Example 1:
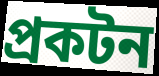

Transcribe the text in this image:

প্রকটন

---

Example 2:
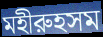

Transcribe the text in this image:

মহীরুহসম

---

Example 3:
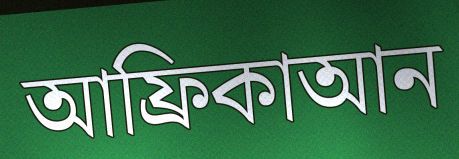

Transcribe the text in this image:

আফ্রিকাআন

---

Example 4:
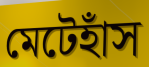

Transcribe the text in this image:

মেটেহাঁস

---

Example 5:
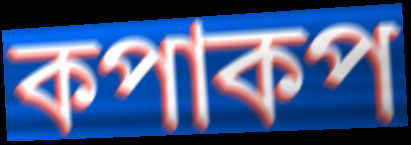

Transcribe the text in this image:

কপাকপ